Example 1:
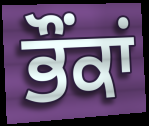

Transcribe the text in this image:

ਭੌਂਕਾਂ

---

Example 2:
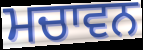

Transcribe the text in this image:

ਮਚਾਵਨ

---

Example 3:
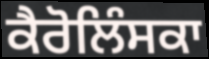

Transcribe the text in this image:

ਕੈਰੋਲਿੰਸਕਾ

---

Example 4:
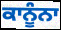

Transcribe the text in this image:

ਕਾਨੂੰਨਾ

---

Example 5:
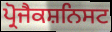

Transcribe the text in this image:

ਪ੍ਰੋਜੈਕਸ਼ਨਿਸਟ